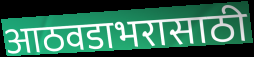
आठवडाभरासाठी